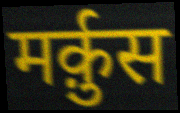
मर्क़ुस